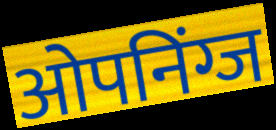
ओपनिंग्ज